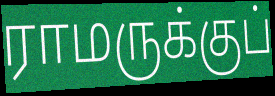
ராமருக்குப்